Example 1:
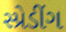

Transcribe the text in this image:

સ્પ્રેડીંગ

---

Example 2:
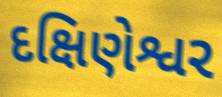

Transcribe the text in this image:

દક્ષિણેશ્વર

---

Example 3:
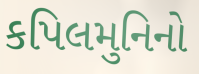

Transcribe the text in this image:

કપિલમુનિનો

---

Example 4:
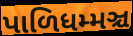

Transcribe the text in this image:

પાળિધમ્મઞ્ચ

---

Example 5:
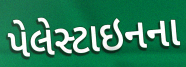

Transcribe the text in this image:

પેલેસ્ટાઇનના